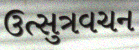
ઉત્સુત્રવચન